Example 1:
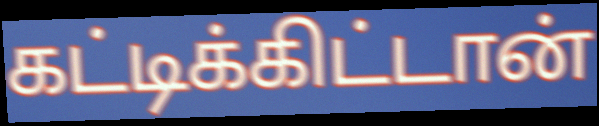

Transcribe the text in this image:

கட்டிக்கிட்டான்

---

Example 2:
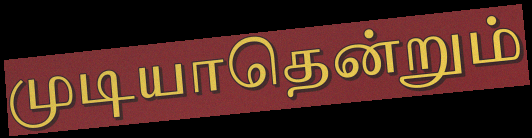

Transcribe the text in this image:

முடியாதென்றும்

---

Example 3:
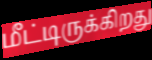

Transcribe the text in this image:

மீட்டிருக்கிறது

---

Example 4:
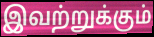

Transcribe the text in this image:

இவற்றுக்கும்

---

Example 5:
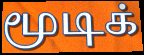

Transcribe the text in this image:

மூடிக்